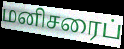
மனிசரைப்